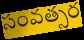
సంవత్సర